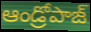
ఆండ్రోపాజ్